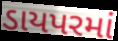
ડાયપરમાં